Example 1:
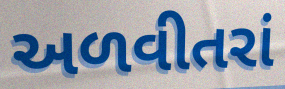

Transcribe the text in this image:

અળવીતરાં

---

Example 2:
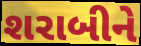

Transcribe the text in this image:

શરાબીને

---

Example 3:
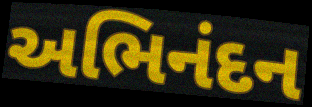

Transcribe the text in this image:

અભિનંદન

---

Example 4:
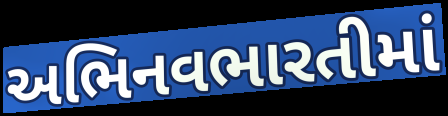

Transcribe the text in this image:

અભિનવભારતીમાં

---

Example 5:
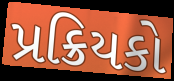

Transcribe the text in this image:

પ્રક્રિયકો